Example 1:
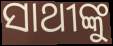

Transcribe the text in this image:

ସାଥୀଙ୍କୁ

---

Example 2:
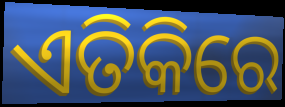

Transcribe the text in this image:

ଏତିକିରେ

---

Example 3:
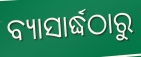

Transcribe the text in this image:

ବ୍ୟାସାର୍ଦ୍ଧଠାରୁ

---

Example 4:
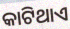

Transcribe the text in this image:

କାଟିଥାଏ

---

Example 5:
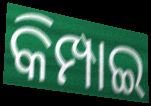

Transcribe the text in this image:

କିମ୍ପାଇ